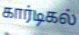
கார்டிகல்